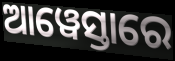
ଆୱେସ୍ତାରେ